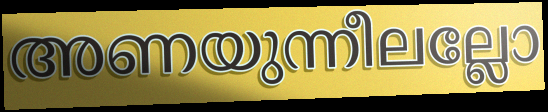
അണയുന്നീലല്ലോ